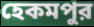
হেকমপুর